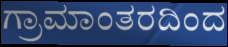
ಗ್ರಾಮಾಂತರದಿಂದ